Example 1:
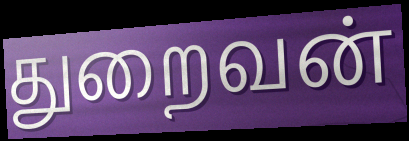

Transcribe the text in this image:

துறைவன்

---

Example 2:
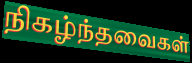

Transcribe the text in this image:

நிகழ்ந்தவைகள்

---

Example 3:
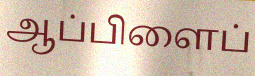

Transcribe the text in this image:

ஆப்பிளைப்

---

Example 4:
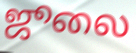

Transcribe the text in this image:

ஜூலை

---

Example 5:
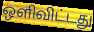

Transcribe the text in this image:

ஒளிவிட்டது